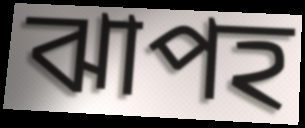
ঝাপহ